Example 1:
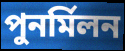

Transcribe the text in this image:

পুনর্মিলন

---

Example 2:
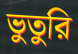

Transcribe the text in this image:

ভুতুরি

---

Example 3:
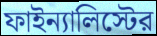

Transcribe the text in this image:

ফাইন্যালিস্টের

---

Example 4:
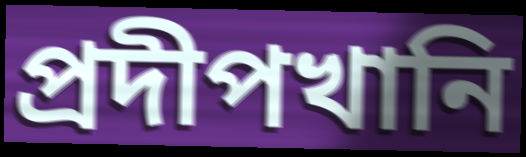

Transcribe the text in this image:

প্রদীপখানি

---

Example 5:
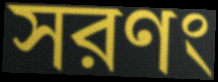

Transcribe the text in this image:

সরণং